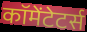
कॉमेंटेटर्स